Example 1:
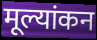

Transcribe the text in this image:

मूल्यांकन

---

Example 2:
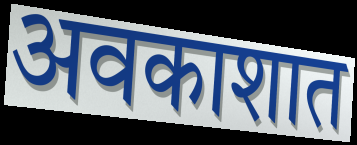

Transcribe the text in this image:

अवकाशात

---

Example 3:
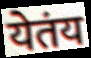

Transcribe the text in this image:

येतंय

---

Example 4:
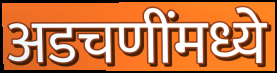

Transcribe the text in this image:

अडचणींमध्ये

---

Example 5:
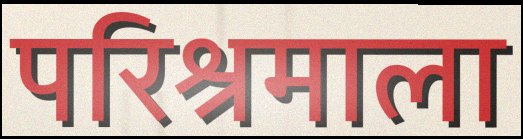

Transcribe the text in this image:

परिश्रमाला